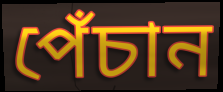
পেঁচান